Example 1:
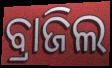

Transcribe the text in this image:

ବ୍ରାଜିଲ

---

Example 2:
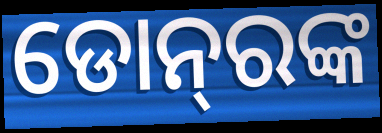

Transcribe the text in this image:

ଡୋନ୍‌ରଙ୍କ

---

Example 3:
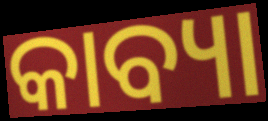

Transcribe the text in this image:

କାବ୍ୟା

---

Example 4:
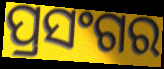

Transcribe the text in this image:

ପ୍ରସଂଗର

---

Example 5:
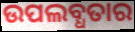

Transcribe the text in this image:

ଉପଲବ୍ଧତାର